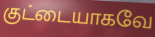
குட்டையாகவே